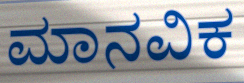
ಮಾನವಿಕ